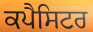
ਕਪੈਸਿਟਰ